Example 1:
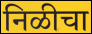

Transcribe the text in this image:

निळीचा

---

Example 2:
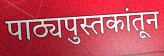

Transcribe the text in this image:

पाठ्यपुस्तकांतून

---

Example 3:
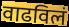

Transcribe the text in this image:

वाढविलं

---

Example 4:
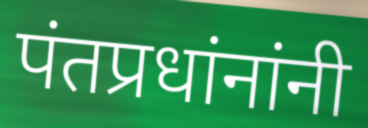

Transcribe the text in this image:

पंतप्रधांनांनी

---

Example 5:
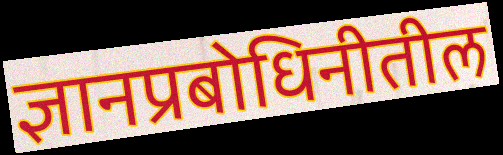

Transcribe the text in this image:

ज्ञानप्रबोधिनीतील